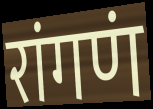
रांगणं